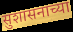
सुशासनाच्या